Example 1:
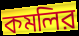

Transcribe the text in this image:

কমলির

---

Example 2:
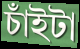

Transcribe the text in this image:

চাঁইটা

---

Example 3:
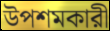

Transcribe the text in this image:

উপশমকারী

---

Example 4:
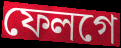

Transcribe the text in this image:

ফেলগে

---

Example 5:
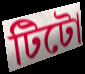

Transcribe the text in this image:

টিটো